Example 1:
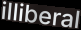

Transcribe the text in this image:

illiberal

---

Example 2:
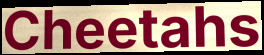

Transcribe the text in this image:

Cheetahs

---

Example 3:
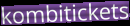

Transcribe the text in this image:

kombitickets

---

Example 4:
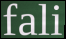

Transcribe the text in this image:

fali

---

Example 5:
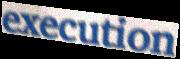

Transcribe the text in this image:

execution